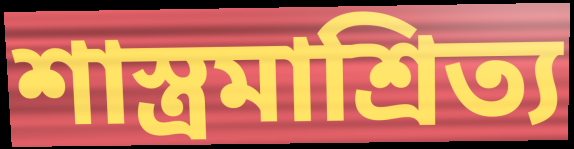
শাস্ত্রমাশ্রিত্য